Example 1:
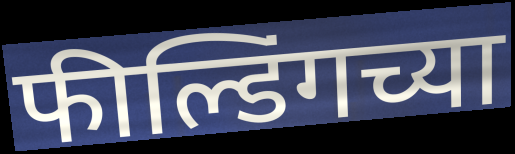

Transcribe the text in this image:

फील्डिंगच्या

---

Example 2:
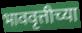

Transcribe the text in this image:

भाववृत्तीच्या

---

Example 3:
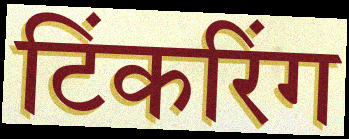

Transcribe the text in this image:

टिंकरिंग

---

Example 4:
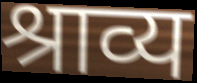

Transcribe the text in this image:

श्राव्य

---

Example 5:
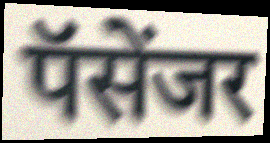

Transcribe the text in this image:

पॅसेंजर